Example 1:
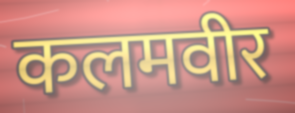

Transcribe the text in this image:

कलमवीर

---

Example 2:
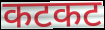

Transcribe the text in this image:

कटकट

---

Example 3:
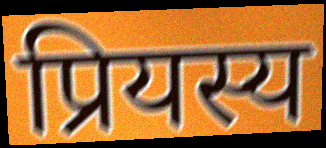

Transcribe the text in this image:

प्रियस्य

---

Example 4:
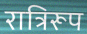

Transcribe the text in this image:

रात्रिरूप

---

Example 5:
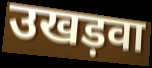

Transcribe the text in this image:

उखड़वा